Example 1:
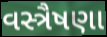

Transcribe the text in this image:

વસ્ત્રૈષણા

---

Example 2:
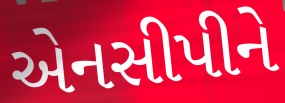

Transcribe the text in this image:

એનસીપીને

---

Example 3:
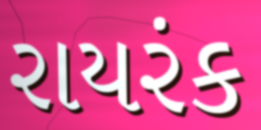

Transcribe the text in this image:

રાયરંક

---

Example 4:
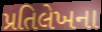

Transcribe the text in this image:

પ્રતિલેખના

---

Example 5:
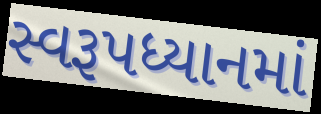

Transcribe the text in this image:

સ્વરૂપધ્યાનમાં